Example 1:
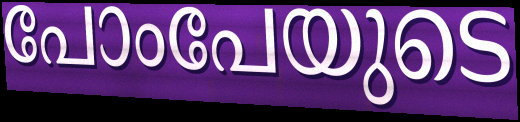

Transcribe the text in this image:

പോംപേയുടെ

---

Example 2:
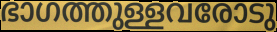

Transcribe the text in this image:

ഭാഗത്തുള്ളവരോടു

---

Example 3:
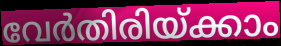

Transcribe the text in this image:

വേർതിരിയ്ക്കാം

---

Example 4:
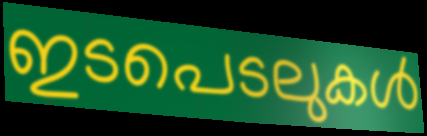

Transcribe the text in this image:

ഇടപെടലുകൾ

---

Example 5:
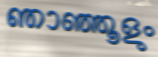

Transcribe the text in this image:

ഞാഞ്ഞൂളും